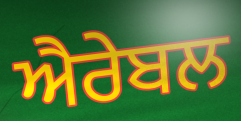
ਐਰੇਬਲ